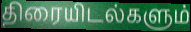
திரையிடல்களும்